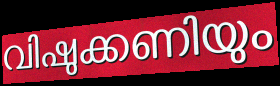
വിഷുക്കണിയും